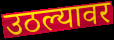
उठल्यावर